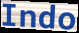
Indo